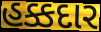
હક્કદાર